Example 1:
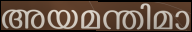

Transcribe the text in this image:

അയമന്തിമാ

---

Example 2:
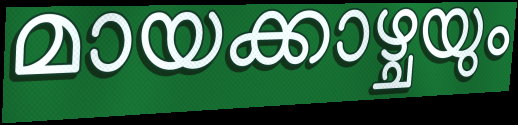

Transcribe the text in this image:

മായക്കാഴ്ചയും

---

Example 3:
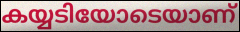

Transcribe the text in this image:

കയ്യടിയോടെയാണ്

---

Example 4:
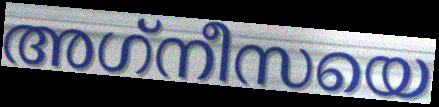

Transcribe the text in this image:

അഗ്‌നീസയെ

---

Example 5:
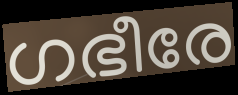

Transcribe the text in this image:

ഗഭീരേ